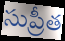
సుప్రీత